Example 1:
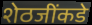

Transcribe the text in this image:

शेठजींकडे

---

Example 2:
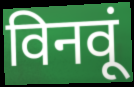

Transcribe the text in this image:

विनवूं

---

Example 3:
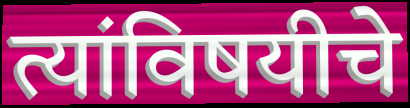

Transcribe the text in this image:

त्यांविषयीचे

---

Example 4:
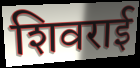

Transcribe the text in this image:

शिवराई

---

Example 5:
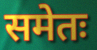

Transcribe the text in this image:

समेतः